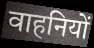
वाहनियों